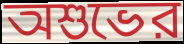
অশুভের